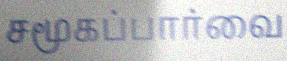
சமூகப்பார்வை